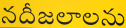
నదీజలాలను